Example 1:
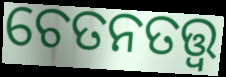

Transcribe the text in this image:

ଚେତନତତ୍ତ୍ୱ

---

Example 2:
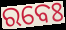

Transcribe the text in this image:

ରବେଃ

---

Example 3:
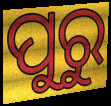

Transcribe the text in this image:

ପୁରୁ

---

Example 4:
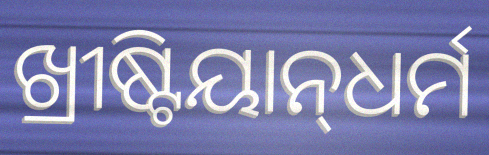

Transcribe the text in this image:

ଖ୍ରୀଷ୍ଟିୟାନ୍‌ଧର୍ମ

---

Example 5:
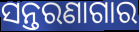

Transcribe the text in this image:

ସନ୍ତରଣାଗାର